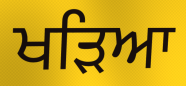
ਖੜਿਆ